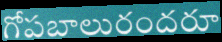
గోపబాలురందరూ